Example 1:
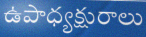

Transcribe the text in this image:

ఉపాధ్యక్షురాలు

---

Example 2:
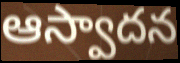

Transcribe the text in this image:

ఆస్వాదన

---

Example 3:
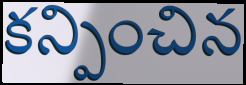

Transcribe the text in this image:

కన్పించిన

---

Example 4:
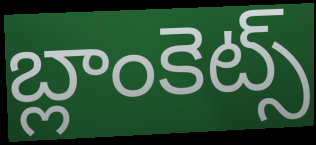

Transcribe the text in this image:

బ్లాంకెట్స్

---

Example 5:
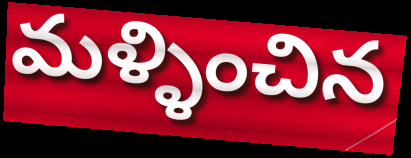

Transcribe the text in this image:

మళ్ళించిన